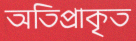
অতিপ্ৰাকৃত